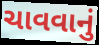
ચાવવાનું